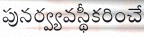
పునర్వ్యవస్థీకరించే